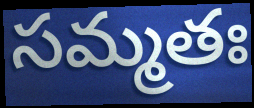
సమ్మతః